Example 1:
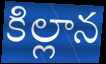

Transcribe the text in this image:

కిల్లాన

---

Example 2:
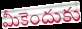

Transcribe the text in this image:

మీకెందుకు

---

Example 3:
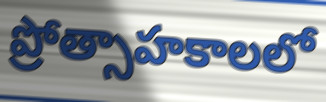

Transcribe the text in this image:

ప్రోత్సాహకాలలో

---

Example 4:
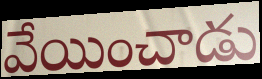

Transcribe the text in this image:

వేయించాడు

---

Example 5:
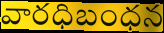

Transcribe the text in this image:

వారధిబంధన